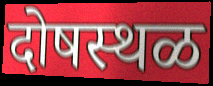
दोषस्थळ